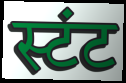
स्टंट